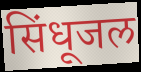
सिंधूजल